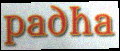
padha